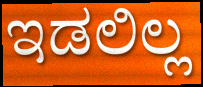
ಇಡಲಿಲ್ಲ